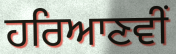
ਹਰਿਆਣਵੀਂ